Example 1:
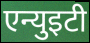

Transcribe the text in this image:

एन्युइटी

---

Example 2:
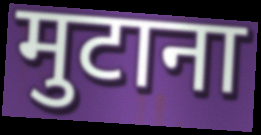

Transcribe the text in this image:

मुटाना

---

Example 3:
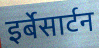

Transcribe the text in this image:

इर्बेसार्टन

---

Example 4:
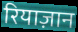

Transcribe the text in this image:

रियाज़ान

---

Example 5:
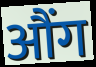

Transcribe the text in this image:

औंग